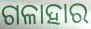
ଗଳାହାର